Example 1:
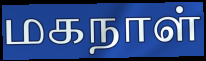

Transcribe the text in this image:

மகநாள்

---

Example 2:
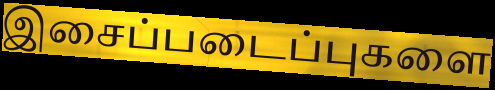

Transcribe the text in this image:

இசைப்படைப்புகளை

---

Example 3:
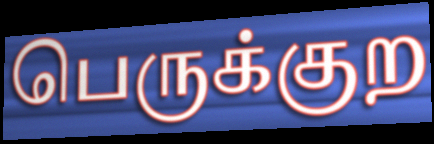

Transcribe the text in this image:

பெருக்குற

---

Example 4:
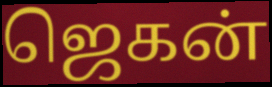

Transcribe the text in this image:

ஜெகன்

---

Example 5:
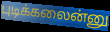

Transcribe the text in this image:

புடிக்கலைன்னு